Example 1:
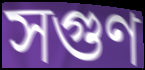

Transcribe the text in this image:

সগুণ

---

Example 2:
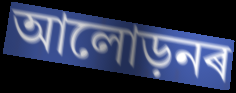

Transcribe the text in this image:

আলোড়নৰ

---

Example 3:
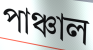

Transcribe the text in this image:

পাঞ্চাল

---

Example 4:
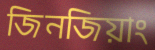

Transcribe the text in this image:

জিনজিয়াং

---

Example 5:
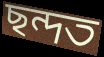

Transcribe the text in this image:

ছন্দত